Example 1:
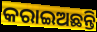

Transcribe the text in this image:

କରାଇଅଛନ୍ତି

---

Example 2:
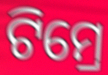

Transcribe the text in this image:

ଟିମ୍ରେ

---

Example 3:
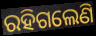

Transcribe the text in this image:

ରହିଗଲେଣି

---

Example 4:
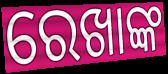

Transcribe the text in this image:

ରେଖାଙ୍କ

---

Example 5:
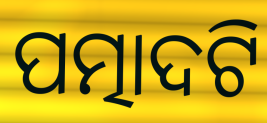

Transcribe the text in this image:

ପତ୍ମାଦଟି